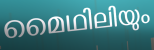
മൈഥിലിയും